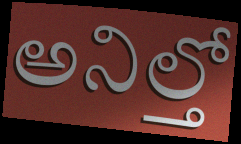
అనిల్తో